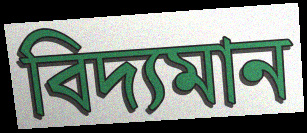
বিদ্যমান